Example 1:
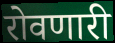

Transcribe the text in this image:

रोवणारी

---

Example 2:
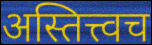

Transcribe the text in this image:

अस्तित्त्वच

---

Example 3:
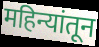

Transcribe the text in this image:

महिन्यांतून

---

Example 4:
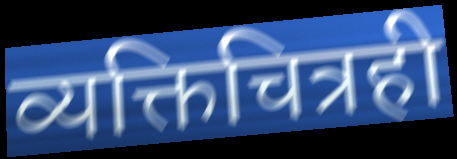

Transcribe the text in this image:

व्यक्तिचित्रही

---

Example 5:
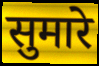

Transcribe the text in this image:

सुमारे